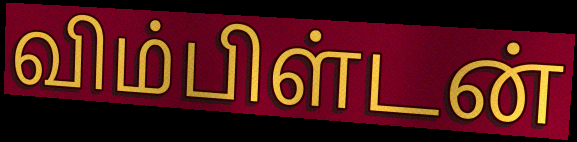
விம்பிள்டன்